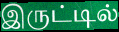
இருட்டில்